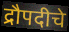
द्रौपदीचे